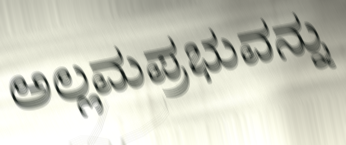
ಅಲ್ಲಮಪ್ರಭುವನ್ನು